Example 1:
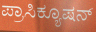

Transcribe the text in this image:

ಪ್ರಾಸಿಕ್ಯೂಷನ್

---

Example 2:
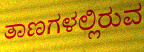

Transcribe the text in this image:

ತಾಣಗಳಲ್ಲಿರುವ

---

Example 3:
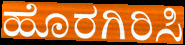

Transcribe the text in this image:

ಹೊರಗಿರಿಸಿ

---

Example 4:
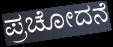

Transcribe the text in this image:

ಪ್ರಚೋದನೆ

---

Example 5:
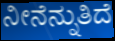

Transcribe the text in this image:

ನೀನೆನ್ನುತಿದೆ